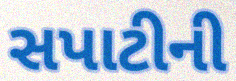
સપાટીની